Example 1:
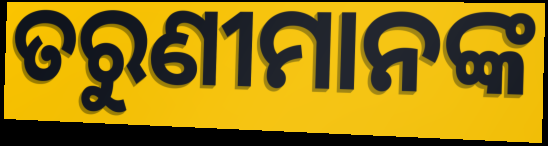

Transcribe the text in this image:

ତରୁଣୀମାନଙ୍କ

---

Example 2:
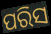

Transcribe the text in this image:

ପରିସ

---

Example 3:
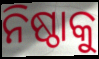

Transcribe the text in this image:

ନିଷ୍ଠାକୁ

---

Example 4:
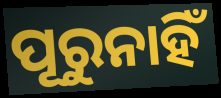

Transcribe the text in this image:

ପୂରୁନାହିଁ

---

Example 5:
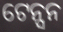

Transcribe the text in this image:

ଟେନ୍ସନ